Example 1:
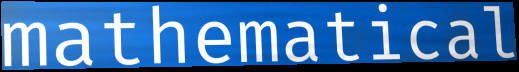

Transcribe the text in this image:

mathematical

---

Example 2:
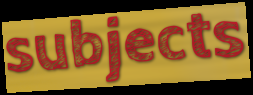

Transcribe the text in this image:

subjects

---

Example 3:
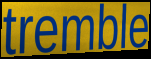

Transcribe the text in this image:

tremble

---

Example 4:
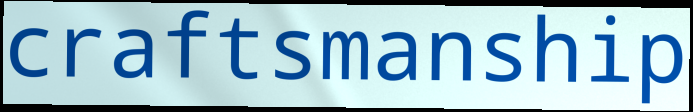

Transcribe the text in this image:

craftsmanship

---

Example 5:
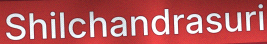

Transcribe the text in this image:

Shilchandrasuri